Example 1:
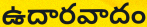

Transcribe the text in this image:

ఉదారవాదం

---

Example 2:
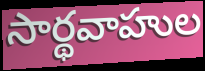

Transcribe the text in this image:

సార్థవాహుల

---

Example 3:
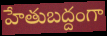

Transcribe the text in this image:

హేతుబద్దంగా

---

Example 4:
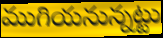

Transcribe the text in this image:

ముగియనున్నట్టు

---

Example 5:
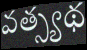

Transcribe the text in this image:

వత్స్యథ